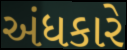
અંધકારે